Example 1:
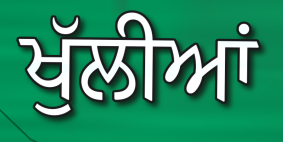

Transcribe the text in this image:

ਖੁੱਲੀਆਂ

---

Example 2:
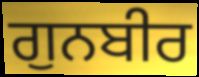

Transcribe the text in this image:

ਗੁਨਬੀਰ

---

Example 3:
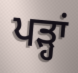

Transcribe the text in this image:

ਪੜ੍ਹਾਂ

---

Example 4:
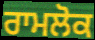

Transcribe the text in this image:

ਰਾਮਲੋਕ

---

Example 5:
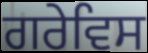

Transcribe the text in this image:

ਗਰੇਵਿਸ